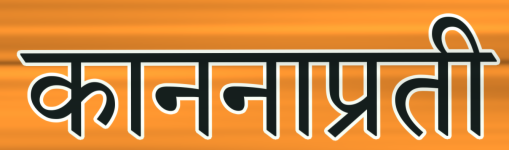
काननाप्रती